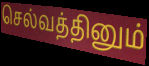
செல்வத்தினும்